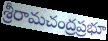
శ్రీరామచంద్రప్రభూ